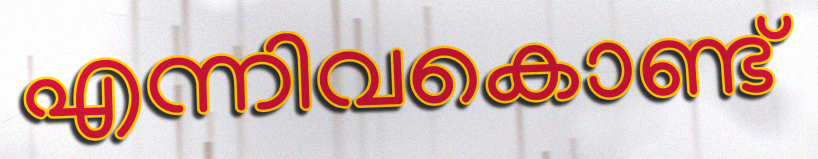
എന്നിവകൊണ്ട്